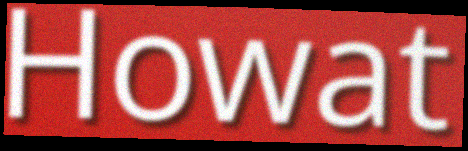
Howat